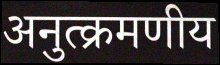
अनुत्क्रमणीय